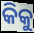
କିକୁ